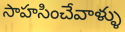
సాహసించేవాళ్ళు